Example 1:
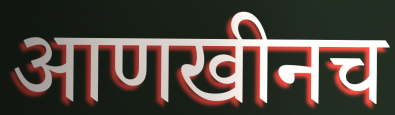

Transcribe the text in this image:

आणखीनच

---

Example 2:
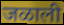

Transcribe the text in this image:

जळाली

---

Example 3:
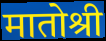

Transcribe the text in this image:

मातोश्री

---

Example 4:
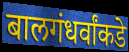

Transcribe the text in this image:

बालगंधर्वांकडे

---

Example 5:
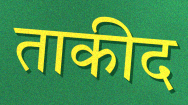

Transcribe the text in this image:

ताकीद